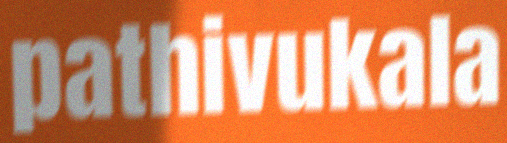
pathivukala